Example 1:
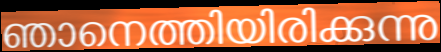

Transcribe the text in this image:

ഞാനെത്തിയിരിക്കുന്നു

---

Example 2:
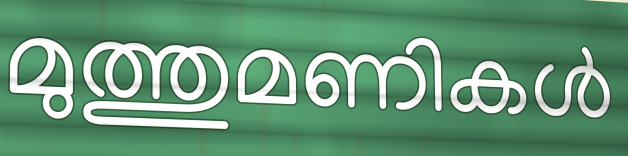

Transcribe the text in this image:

മുത്തുമണികൾ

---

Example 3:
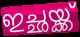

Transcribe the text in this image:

ഇച്ഛയ്ക്ക്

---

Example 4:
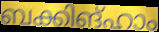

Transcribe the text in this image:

ബക്കിങ്ഹാം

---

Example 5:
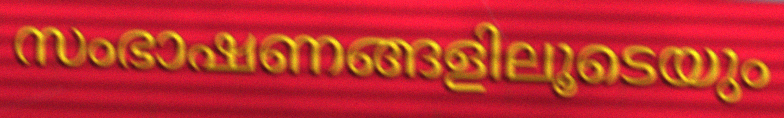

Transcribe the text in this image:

സംഭാഷണങ്ങളിലൂടെയും